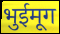
भुईमूग